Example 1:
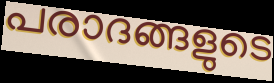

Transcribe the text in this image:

പരാദങ്ങളുടെ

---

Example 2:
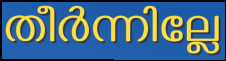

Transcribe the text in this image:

തീർന്നില്ലേ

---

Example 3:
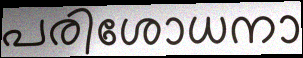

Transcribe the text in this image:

പരിശോധനാ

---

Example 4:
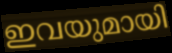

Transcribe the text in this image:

ഇവയുമായി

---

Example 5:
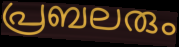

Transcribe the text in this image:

പ്രബലരും